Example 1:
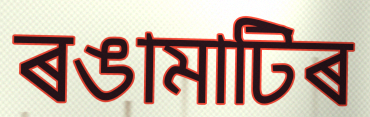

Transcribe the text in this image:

ৰঙামাটিৰ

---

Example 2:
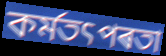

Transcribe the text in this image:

কৰ্মতৎপৰতা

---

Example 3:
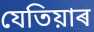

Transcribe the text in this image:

যেতিয়াৰ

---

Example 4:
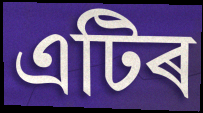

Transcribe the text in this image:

এটিৰ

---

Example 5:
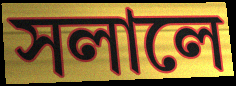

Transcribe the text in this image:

সলালে